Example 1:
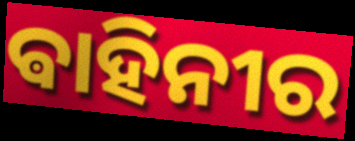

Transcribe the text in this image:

ଵାହିନୀର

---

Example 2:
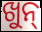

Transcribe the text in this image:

ଖୁନ୍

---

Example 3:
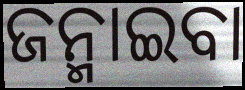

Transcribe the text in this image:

ଜନ୍ମାଇବା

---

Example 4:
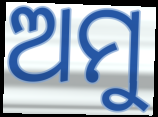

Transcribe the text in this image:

ଅମୁ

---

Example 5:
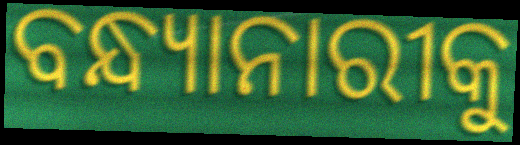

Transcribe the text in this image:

ବନ୍ଧ୍ୟାନାରୀକୁ